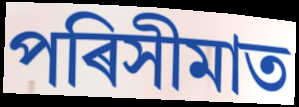
পৰিসীমাত